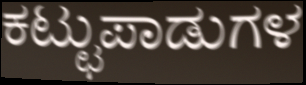
ಕಟ್ಟುಪಾಡುಗಳ